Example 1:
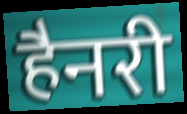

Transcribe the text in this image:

हैनरी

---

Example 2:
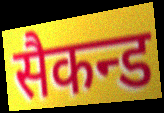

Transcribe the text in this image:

सैकन्ड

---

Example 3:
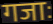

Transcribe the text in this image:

गजाः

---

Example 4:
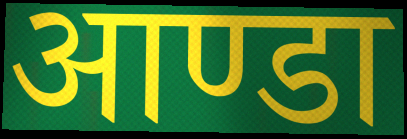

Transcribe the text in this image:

आण्डा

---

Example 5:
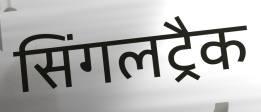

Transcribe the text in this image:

सिंगलट्रैक